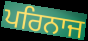
ਪਰਿਨਾਜ